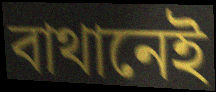
বাথানেই